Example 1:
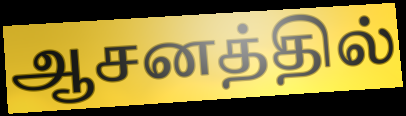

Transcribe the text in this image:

ஆசனத்தில்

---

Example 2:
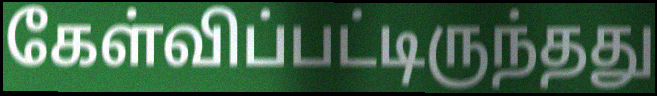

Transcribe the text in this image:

கேள்விப்பட்டிருந்தது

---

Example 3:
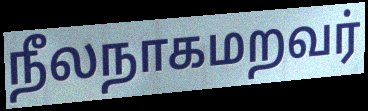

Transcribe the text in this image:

நீலநாகமறவர்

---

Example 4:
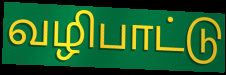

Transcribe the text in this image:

வழிபாட்டு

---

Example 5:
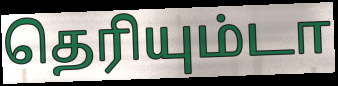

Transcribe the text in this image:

தெரியும்டா